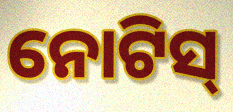
ନୋଟିସ୍